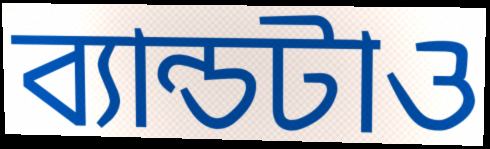
ব্যান্ডটাও